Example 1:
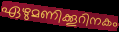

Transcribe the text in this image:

ഏഴുമണിക്കൂറിനകം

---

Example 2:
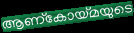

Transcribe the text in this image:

ആണ്കോയ്മയുടെ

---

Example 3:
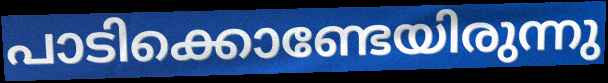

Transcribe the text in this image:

പാടിക്കൊണ്ടേയിരുന്നു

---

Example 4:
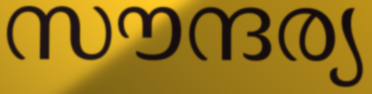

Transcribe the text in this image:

സൗന്ദര്യ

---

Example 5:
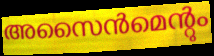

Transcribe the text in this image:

അസൈൻമെന്റും